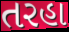
તરહા